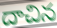
దాచిన